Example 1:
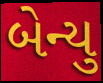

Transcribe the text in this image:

બેન્યુ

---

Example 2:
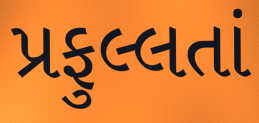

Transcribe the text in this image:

પ્રફુલ્લતાં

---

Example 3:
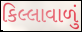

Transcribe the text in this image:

કિલ્લાવાળું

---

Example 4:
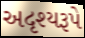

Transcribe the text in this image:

અદૃશ્યરૂપે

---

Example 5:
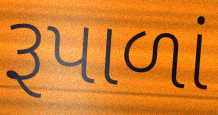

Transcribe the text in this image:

રૂપાળાં